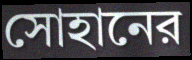
সোহানের